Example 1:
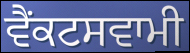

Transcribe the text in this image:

ਵੈਂਕਟਸਵਾਮੀ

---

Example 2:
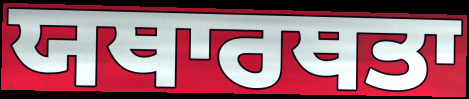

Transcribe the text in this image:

ਯਥਾਰਥਤਾ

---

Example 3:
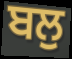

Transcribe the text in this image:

ਬਲੁ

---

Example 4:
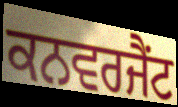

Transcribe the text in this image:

ਕਨਵਰਜੈਂਟ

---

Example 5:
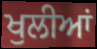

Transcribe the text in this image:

ਖੁਲੀਆਂ